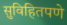
सुविहितपणे